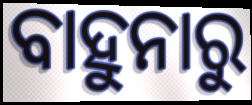
ବାହୁନାରୁ